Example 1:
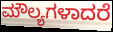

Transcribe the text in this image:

ಮೌಲ್ಯಗಳಾದರೆ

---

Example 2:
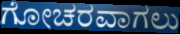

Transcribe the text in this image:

ಗೋಚರವಾಗಲು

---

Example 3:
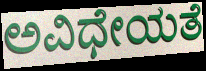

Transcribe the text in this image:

ಅವಿಧೇಯತೆ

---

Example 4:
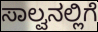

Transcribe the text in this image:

ಸಾಲ್ವನಲ್ಲಿಗೆ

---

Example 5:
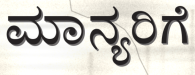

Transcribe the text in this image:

ಮಾನ್ಯರಿಗೆ